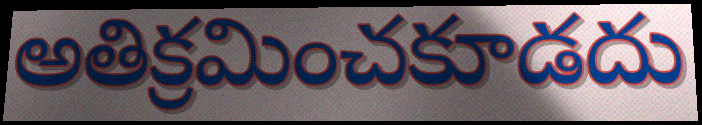
అతిక్రమించకూడదు